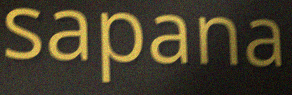
sapana